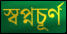
স্বপ্নচূর্ণ